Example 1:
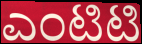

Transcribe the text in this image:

ಎಂಟಿಟಿ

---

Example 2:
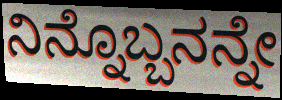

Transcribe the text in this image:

ನಿನ್ನೊಬ್ಬನನ್ನೇ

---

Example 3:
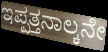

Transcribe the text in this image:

ಇಪ್ಪತ್ತನಾಲ್ಕನೇ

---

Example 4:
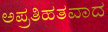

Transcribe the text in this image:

ಅಪ್ರತಿಹತವಾದ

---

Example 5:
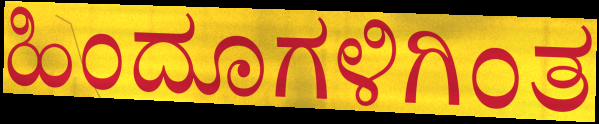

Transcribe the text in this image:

ಹಿಂದೂಗಳಿಗಿಂತ